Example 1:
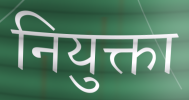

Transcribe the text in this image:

नियुक्ता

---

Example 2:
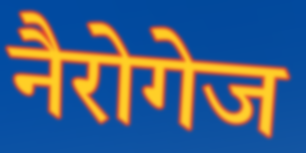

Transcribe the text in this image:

नैरोगेज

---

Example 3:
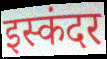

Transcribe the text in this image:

इस्कंदर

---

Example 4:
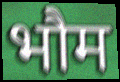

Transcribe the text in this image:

भौम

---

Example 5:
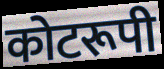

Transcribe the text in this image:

कोटरूपी